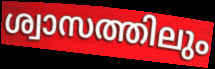
ശ്വാസത്തിലും